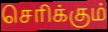
செரிக்கும்